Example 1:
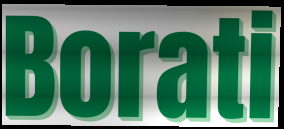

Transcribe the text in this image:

Borati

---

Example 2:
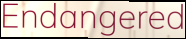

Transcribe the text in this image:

Endangered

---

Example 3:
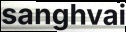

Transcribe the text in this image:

sanghvai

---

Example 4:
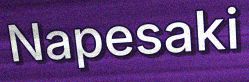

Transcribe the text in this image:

Napesaki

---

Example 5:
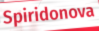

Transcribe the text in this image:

Spiridonova